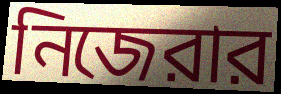
নিজেরার